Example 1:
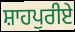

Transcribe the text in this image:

ਸ਼ਾਹਪੁਰੀਏ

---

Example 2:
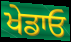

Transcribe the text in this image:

ਖੇਡਾਓ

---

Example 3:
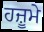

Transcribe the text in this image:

ਹਜ਼ੂਮੇ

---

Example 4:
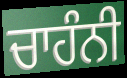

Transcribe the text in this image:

ਚਾਹੰਨੀ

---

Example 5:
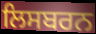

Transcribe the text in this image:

ਲਿਸਬਰਨ